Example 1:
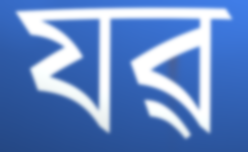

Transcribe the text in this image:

যৱ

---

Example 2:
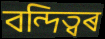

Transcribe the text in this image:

বন্দিত্বৰ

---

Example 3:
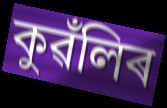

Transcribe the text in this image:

কুৱঁলিৰ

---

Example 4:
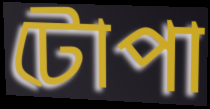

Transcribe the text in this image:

টোপা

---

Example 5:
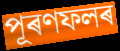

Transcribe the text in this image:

পূৰণফলৰ